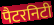
पैटरनिटी